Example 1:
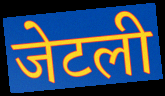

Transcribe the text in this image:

जेटली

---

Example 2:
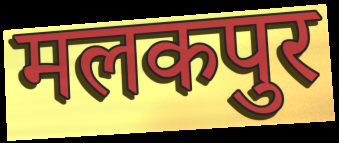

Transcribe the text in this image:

मलकपुर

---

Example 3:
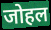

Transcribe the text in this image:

जोहल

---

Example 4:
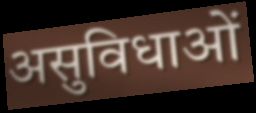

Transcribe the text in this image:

असुविधाओं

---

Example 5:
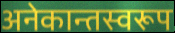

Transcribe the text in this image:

अनेकान्तस्वरूप